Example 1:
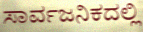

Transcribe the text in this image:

ಸಾರ್ವಜನಿಕದಲ್ಲಿ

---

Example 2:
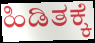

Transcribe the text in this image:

ಹಿಡಿತಕ್ಕೆ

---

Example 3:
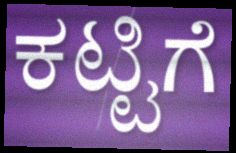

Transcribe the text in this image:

ಕಟ್ಟಿಗೆ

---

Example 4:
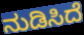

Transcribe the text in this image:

ನುಡಿಸಿದೆ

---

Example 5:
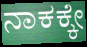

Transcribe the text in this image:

ನಾಕಕ್ಕೇ